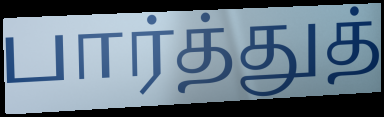
பார்த்துத்